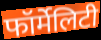
फॉर्मेलिटी